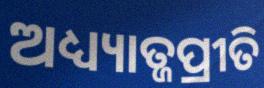
ଅଧ୍ୟ୍ୟାତ୍ଜପ୍ରୀତି